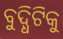
ବୁଦ୍ଧିଟିକୁ